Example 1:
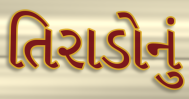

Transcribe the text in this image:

તિરાડોનું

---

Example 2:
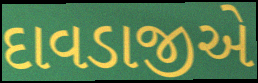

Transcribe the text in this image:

દાવડાજીએ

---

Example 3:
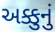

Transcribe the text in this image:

અક્કુનું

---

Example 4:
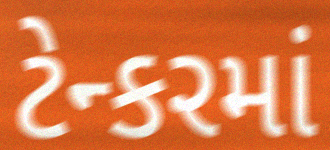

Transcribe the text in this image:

ટેન્કરમાં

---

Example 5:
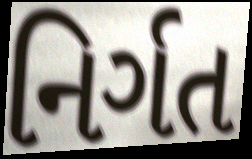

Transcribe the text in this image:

નિર્ગત